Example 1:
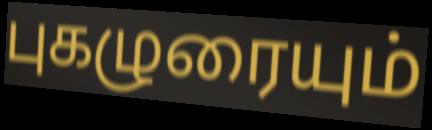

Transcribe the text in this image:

புகழுரையும்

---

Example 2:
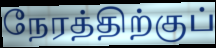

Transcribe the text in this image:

நேரத்திற்குப்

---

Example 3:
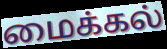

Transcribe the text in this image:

மைக்கல்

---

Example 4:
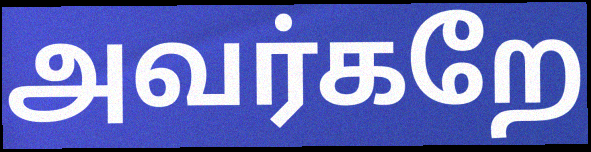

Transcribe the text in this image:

அவர்கறே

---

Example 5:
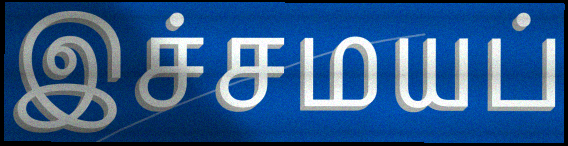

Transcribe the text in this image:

இச்சமயப்